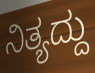
ನಿತ್ಯದ್ದು